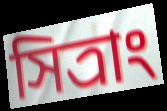
সিত্রাং